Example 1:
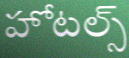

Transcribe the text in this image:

హోటల్స్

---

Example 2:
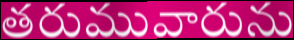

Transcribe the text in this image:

తరుమువారును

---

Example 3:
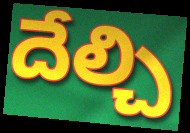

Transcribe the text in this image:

దేల్చి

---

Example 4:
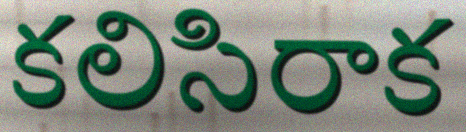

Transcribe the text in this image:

కలిసిరాక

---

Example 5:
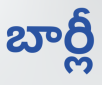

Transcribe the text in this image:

బార్లీ